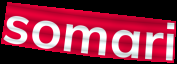
somari